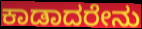
ಕಾಡಾದರೇನು